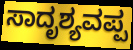
ಸಾದೃಶ್ಯವಪ್ಪ